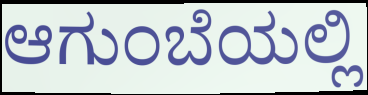
ಆಗುಂಬೆಯಲ್ಲಿ